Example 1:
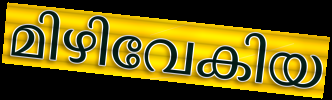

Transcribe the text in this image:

മിഴിവേകിയ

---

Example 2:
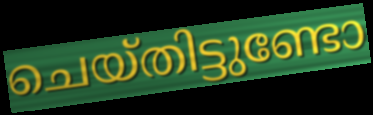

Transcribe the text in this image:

ചെയ്തിട്ടുണ്ടോ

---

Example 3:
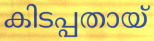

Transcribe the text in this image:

കിടപ്പതായ്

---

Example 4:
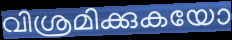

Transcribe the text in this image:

വിശ്രമിക്കുകയോ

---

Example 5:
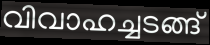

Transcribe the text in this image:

വിവാഹച്ചടങ്ങ്